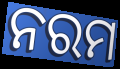
ନରମ